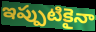
ఇప్పుటికైనా